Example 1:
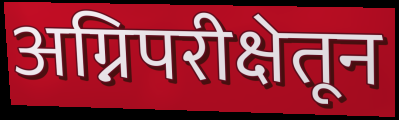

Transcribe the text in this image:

अग्निपरीक्षेतून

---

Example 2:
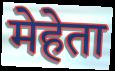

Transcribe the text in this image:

मेहेता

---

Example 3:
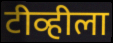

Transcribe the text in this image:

टीव्हीला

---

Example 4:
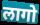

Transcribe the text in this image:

लागो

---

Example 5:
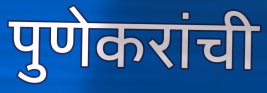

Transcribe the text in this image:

पुणेकरांची